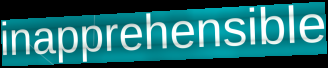
inapprehensible